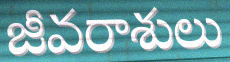
జీవరాశులు